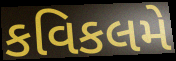
કવિકલમે